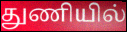
துணியில்